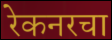
रेकनरचा